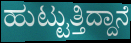
ಹುಟ್ಟುತ್ತಿದ್ದಾನೆ